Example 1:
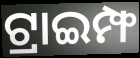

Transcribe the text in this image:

ଟ୍ରାଇମ୍ଫ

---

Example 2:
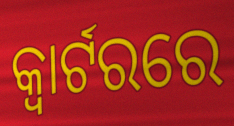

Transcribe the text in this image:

କ୍ୱାର୍ଟରରେ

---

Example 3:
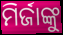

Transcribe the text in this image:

ମିର୍ଜାଙ୍କୁ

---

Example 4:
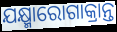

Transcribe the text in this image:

ଯକ୍ଷ୍ମାରୋଗାକ୍ରାନ୍ତ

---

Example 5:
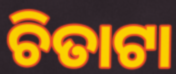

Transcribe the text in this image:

ଚିତାଟା